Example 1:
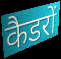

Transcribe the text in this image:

कैडरों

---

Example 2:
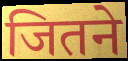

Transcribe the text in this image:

जितने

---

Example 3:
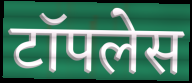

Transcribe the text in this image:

टॉपलेस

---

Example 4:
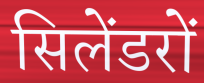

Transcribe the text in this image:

सिलेंडरों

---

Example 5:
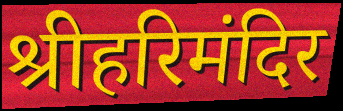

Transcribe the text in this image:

श्रीहरिमंदिर